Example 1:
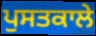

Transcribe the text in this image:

ਪੁਸਤਕਾਲੇ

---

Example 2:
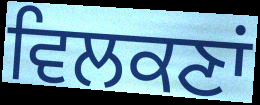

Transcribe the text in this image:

ਵਿਲਕਣਾਂ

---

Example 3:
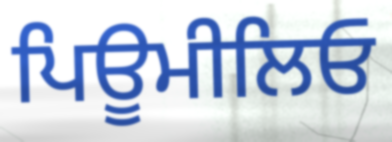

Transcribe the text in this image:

ਪਿਊਮੀਲਿਓ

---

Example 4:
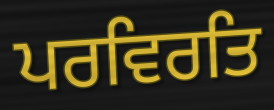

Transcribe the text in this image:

ਪਰਵਿਰਤਿ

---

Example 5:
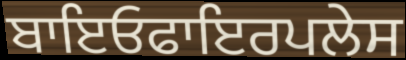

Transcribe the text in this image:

ਬਾਇਓਫਾਇਰਪਲੇਸ